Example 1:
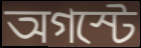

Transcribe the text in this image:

অগস্টে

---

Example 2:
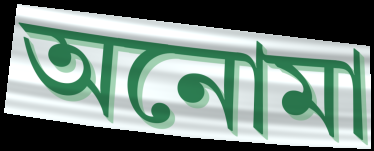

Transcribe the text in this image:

অনোমা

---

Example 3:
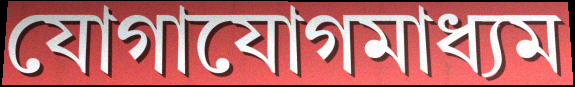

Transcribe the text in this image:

যোগাযোগমাধ্যম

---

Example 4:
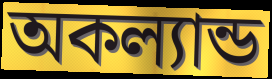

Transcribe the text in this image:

অকল্যান্ড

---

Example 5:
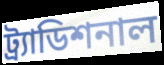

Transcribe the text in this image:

ট্র্যাডিশনাল